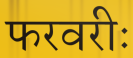
फरवरीः